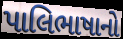
પાલિભાષાનો